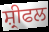
ਸ਼੍ਰੀਫਲ